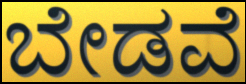
ಬೇಡವೆ